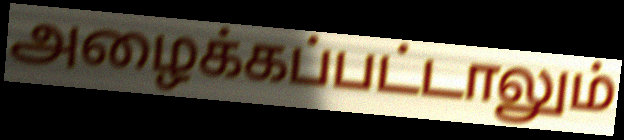
அழைக்கப்பட்டாலும்